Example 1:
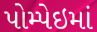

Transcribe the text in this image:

પોમ્પેઇમાં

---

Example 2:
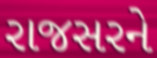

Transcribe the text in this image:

રાજસરને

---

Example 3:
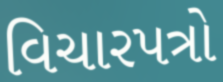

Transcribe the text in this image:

વિચારપત્રો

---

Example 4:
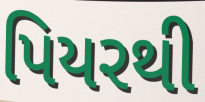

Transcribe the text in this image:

પિયરથી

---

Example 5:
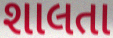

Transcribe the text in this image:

શાલતા